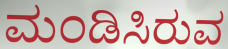
ಮಂಡಿಸಿರುವ